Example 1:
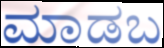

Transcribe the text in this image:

ಮಾಡಬ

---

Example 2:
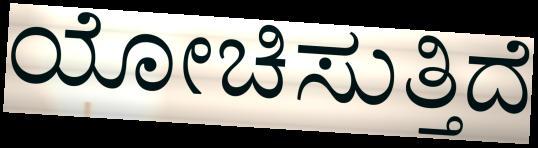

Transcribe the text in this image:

ಯೋಚಿಸುತ್ತಿದೆ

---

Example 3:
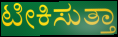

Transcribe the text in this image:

ಟೀಕಿಸುತ್ತಾ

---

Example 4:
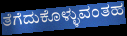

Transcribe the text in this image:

ತೆಗೆದುಕೊಳ್ಳುವಂತಹ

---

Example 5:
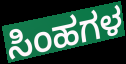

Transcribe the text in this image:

ಸಿಂಹಗಳ